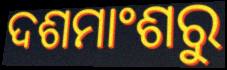
ଦଶମାଂଶରୁ